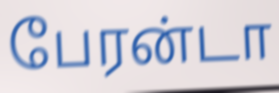
பேரன்டா